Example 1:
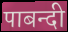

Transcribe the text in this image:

पाबन्दी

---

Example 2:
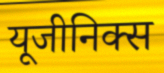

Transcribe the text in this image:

यूजीनिक्स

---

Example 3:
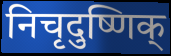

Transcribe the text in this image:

निचृदुष्णिक्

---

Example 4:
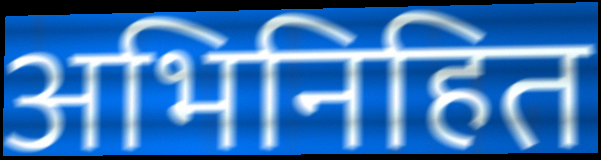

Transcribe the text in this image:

अभिनिहित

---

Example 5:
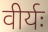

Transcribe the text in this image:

वीर्यः